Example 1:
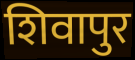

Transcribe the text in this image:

शिवापुर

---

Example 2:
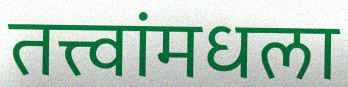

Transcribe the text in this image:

तत्त्वांमधला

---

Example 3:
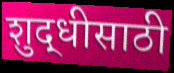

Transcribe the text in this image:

शुद्धीसाठी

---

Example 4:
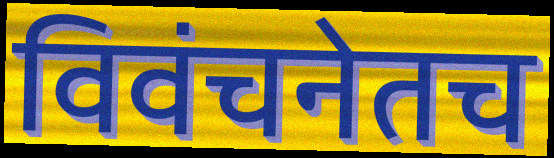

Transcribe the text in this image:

विवंचनेतच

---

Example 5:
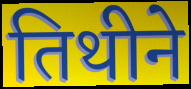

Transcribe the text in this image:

तिथीने